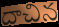
దాచిన